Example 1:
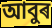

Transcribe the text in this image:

আবুৰ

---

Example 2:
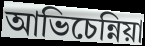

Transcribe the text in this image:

আভিচেন্নিয়া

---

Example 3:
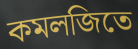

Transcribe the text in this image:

কমলজিতে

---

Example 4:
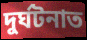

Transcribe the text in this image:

দুৰ্ঘটনাত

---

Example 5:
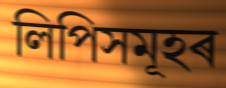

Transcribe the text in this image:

লিপিসমূহৰ